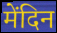
मेंदिन